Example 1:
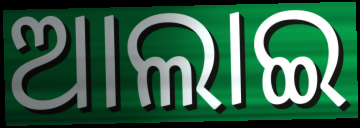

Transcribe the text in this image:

ଆଲାଇ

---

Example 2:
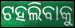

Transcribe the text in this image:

ଟହଲିବାକୁ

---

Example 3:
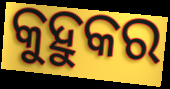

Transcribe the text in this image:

କୁହୁକର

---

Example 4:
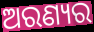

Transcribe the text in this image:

ଅରଣ୍ୟର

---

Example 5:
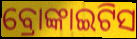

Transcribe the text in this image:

ବ୍ରୋଙ୍କାଇଟିସ